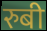
रुबी